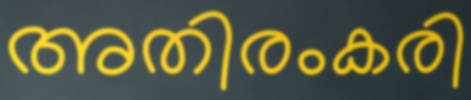
അതിരംകരി